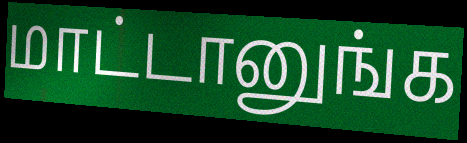
மாட்டானுங்க